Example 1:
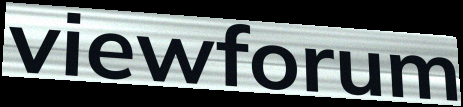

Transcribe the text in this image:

viewforum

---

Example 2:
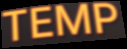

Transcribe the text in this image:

TEMP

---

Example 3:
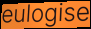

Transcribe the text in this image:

eulogise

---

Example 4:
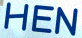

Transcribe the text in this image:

HEN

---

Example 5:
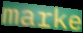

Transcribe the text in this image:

marke